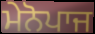
ਮੇਨੋਪਾਜ